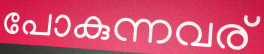
പോകുന്നവര്